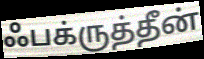
ஃபக்ருத்தீன்